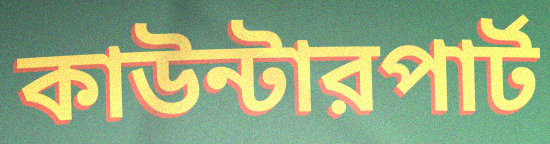
কাউন্টারপার্ট